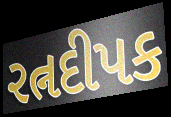
રત્નદીપક